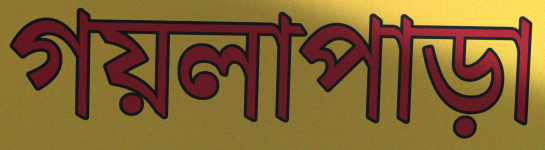
গয়লাপাড়া